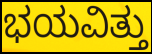
ಭಯವಿತ್ತು